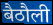
बैठौली